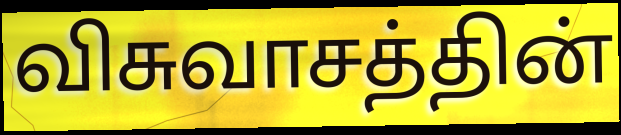
விசுவாசத்தின்